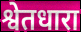
श्वेतधारा